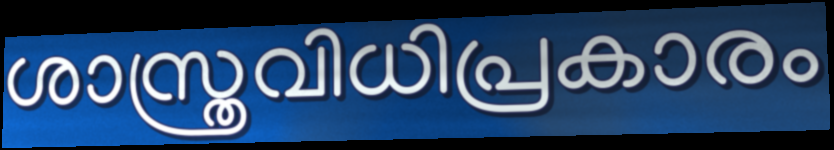
ശാസ്ത്രവിധിപ്രകാരം